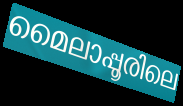
മൈലാപ്പൂരിലെ